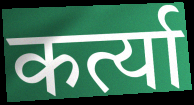
कर्त्या